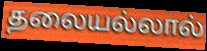
தலையல்லால்